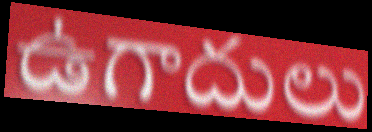
ఉగాదులు